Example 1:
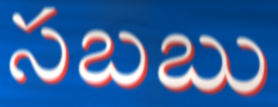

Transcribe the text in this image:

సబబు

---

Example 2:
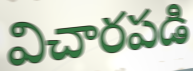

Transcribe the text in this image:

విచారపడి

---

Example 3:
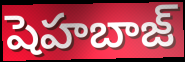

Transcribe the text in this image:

షెహబాజ్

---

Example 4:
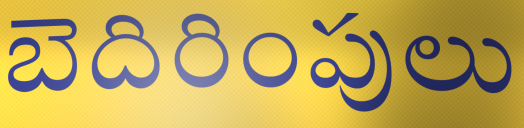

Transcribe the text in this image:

బెదిరింపులు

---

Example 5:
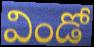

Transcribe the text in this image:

విండో